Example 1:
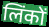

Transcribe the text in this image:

लिंकों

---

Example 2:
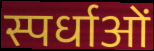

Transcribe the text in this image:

स्‍पर्धाओं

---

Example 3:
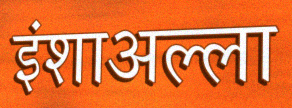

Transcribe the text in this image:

इंशाअल्ला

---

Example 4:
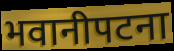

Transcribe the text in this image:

भवानीपटना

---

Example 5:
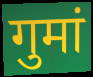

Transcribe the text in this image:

गुमां